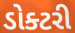
ડોક્ટરી